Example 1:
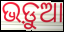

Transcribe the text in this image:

ଭଡ଼ୁଆ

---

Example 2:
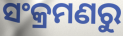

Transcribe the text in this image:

ସଂକ୍ରମଣରୁ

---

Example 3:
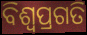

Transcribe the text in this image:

ବିଶ୍ବପ୍ରଗତି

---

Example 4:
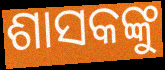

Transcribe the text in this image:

ଶାସକଙ୍କୁ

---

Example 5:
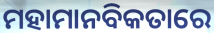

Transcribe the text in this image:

ମହାମାନବିକତାରେ